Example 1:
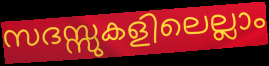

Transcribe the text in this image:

സദസ്സുകളിലെല്ലാം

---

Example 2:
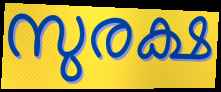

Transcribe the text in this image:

സുരക്ഷ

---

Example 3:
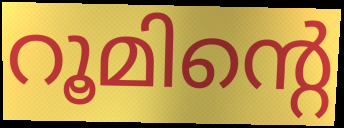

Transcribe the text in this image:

റൂമിന്റെ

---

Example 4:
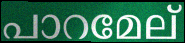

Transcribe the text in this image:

പാറമേല്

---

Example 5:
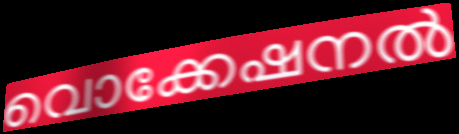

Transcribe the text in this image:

വൊക്കേഷനൽ